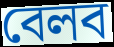
বেলব